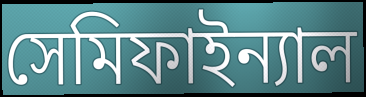
সেমিফাইন্যাল